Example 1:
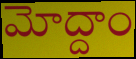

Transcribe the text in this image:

మోద్దాం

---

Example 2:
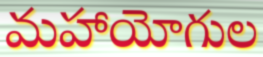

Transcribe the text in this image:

మహాయోగుల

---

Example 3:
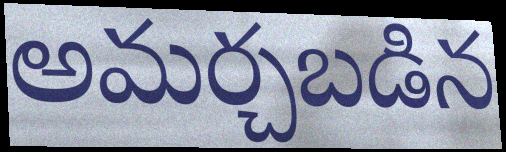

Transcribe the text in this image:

అమర్చబడిన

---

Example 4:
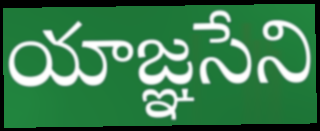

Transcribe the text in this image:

యాజ్ఞసేని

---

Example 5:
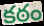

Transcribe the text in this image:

కఠం